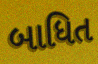
બાધિત